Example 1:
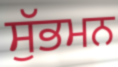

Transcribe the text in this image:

ਸੁੱਭਮਨ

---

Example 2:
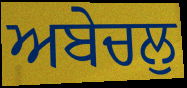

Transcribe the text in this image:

ਅਬੇਚਲੁ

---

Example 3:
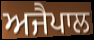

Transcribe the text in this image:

ਅਜੈਪਾਲ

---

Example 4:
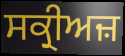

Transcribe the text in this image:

ਸਕ੍ਰੀਅਜ਼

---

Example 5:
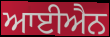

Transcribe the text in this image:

ਆਈਐਨ